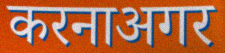
करनाअगर